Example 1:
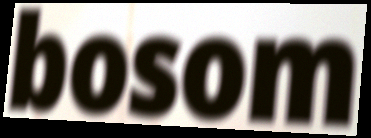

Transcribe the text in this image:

bosom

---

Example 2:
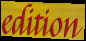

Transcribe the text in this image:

edition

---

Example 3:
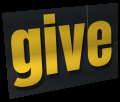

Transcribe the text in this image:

give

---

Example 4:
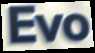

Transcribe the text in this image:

Evo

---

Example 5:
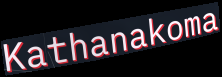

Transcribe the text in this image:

Kathanakoma